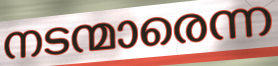
നടന്മാരെന്ന